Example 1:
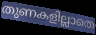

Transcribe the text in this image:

തുണകളില്ലാതെ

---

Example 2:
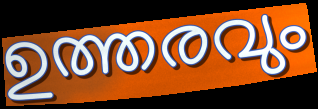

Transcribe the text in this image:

ഉത്തരവും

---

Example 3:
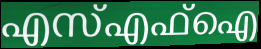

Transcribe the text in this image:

എസ്എഫ്ഐ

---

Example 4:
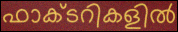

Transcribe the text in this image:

ഫാക്ടറികളിൽ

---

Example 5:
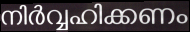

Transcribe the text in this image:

നിർവ്വഹിക്കണം